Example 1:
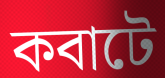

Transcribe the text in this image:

কবাটে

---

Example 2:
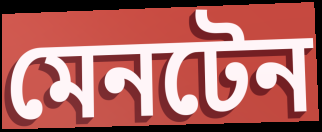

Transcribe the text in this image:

মেনটেন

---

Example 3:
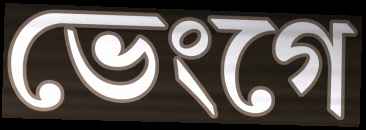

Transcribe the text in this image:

ভেংগে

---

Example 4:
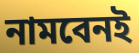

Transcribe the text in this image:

নামবেনই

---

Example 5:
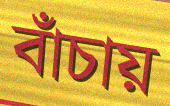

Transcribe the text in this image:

বাঁচায়